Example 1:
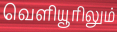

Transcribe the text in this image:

வெளியூரிலும்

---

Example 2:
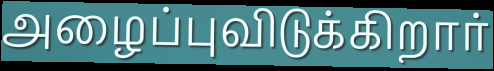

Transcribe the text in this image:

அழைப்புவிடுக்கிறார்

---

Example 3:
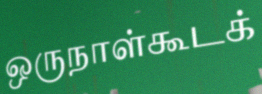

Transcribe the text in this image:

ஒருநாள்கூடக்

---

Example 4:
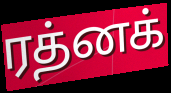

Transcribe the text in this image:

ரத்னக்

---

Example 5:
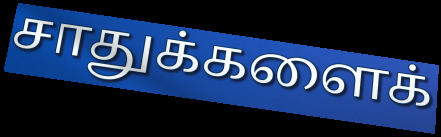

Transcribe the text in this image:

சாதுக்களைக்